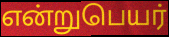
என்றுபெயர்